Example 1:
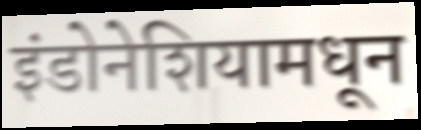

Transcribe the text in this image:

इंडोनेशियामधून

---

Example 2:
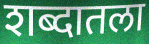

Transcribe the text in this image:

शब्दातला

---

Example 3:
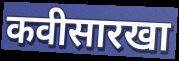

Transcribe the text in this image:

कवीसारखा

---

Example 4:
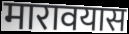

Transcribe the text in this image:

मारावयास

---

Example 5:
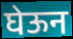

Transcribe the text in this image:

घेऊन